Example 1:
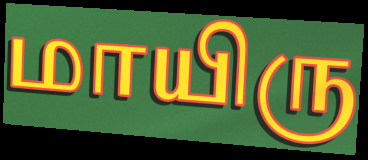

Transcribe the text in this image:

மாயிரு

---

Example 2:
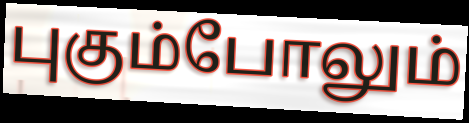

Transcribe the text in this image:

புகும்போலும்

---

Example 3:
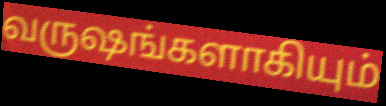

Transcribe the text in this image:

வருஷங்களாகியும்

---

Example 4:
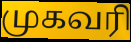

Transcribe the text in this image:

முகவரி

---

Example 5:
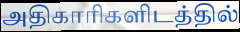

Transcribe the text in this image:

அதிகாரிகளிடத்தில்